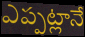
ఎప్పట్లానే